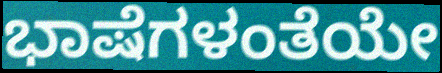
ಭಾಷೆಗಳಂತೆಯೇ